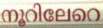
നൂറിലേറെ